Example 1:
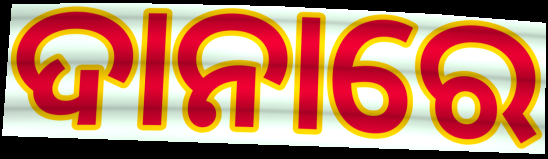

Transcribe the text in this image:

ଦାନାରେ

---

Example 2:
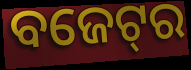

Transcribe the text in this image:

ବଜେଟ୍‌ର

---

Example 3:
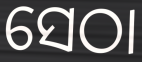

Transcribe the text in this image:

ସେଠା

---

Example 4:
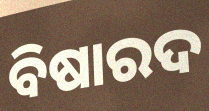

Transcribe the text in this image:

ବିଷାରଦ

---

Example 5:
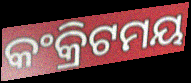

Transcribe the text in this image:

କଂକ୍ରିଟମୟ